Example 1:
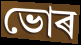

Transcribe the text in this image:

ভোৰ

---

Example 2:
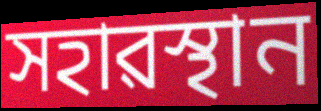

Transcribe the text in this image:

সহাৱস্থান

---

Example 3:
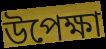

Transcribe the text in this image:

উপেক্ষা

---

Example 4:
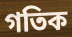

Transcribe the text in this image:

গতিক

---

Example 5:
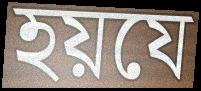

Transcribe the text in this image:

হয়যে